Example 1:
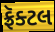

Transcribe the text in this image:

ફ્રૅક્ટલ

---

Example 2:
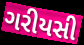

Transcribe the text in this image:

ગરીયસી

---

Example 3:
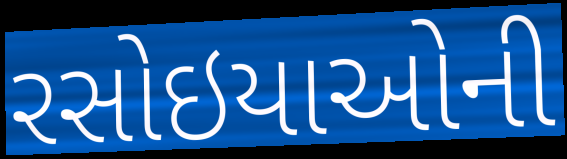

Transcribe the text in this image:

રસોઇયાઓની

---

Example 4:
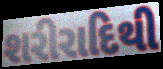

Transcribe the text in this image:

શરીરાદિથી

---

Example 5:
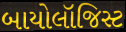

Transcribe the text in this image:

બાયોલૉજિસ્ટ